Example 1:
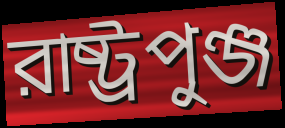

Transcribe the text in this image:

রাষ্ট্রপুঞ্জ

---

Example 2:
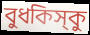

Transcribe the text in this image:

বুধকিস্‌কু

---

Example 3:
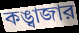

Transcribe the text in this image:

কঙ্বাজার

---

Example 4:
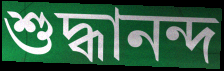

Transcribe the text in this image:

শুদ্ধানন্দ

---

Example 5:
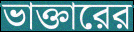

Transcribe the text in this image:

ভাক্তারের